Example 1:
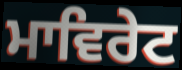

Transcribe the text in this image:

ਮਾਵਿਰੇਟ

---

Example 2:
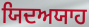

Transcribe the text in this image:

ਯਿਦਅਯਾਹ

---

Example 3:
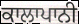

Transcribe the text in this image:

ਕਾਲਾਪਾਨੀ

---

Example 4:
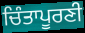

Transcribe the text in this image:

ਚਿੰਤਾਪੂਰਣੀ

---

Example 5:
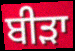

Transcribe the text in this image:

ਬੀੜਾ